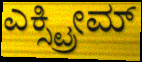
ಎಕ್ಸ್ಟ್ರೀಮ್